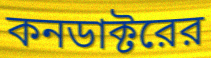
কনডাক্টরের